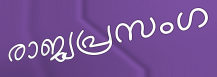
രാജ്യപ്രസംഗ